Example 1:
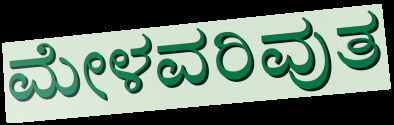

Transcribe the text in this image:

ಮೇಳವರಿವುತ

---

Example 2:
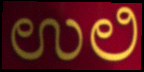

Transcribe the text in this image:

ಉಲಿ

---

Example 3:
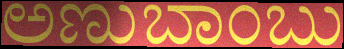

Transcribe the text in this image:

ಅಣುಬಾಂಬು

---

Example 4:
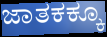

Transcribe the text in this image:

ಜಾತಕಕ್ಕೂ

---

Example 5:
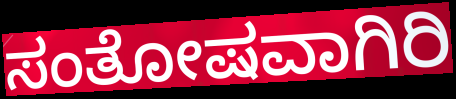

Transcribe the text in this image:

ಸಂತೋಷವಾಗಿರಿ